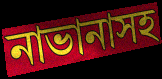
নাভানাসহ